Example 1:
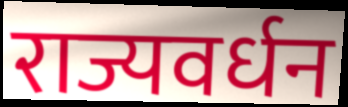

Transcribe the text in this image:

राज्यवर्धन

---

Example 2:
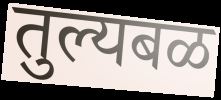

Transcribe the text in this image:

तुल्यबळ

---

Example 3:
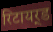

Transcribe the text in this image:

रिटायर्ड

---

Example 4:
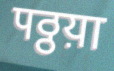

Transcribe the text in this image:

पठ्ठय़ा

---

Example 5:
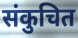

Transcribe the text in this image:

संकुचित